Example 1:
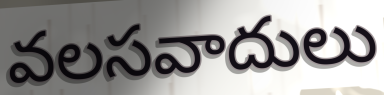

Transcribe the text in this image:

వలసవాదులు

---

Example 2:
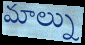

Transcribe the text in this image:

మాల్ను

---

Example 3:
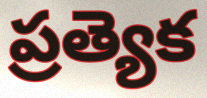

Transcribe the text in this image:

ప్రత్యెక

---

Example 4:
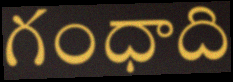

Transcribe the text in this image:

గంధాది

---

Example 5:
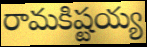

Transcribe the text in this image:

రామకిష్టయ్య